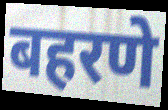
बहरणे